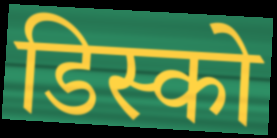
डिस्को